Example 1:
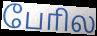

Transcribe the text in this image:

பேரில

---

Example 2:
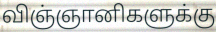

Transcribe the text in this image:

விஞ்ஞானிகளுக்கு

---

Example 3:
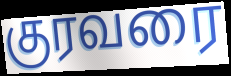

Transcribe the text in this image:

குரவரை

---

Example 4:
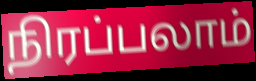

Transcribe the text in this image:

நிரப்பலாம்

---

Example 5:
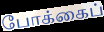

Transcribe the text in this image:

போக்கைப்